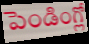
పెండింగ్లో